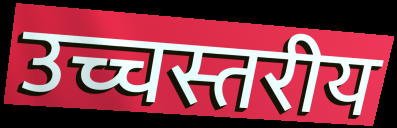
उच्चस्तरीय